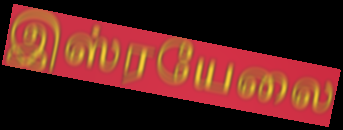
இஸ்ரயேலை